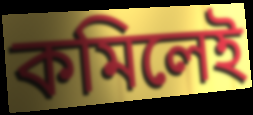
কমিলেই